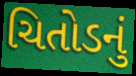
ચિતોડનું